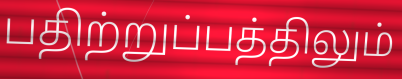
பதிற்றுப்பத்திலும்